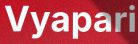
Vyapari